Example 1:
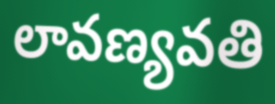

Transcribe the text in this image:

లావణ్యవతి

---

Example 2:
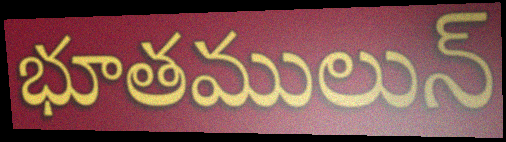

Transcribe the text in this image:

భూతములున్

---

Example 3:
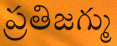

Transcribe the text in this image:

ప్రతిజగ్ము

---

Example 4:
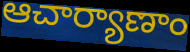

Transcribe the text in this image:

ఆచార్యాణాం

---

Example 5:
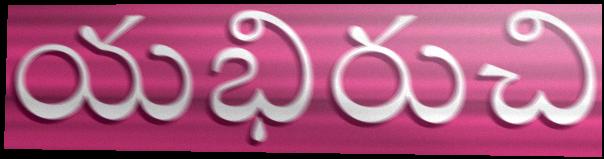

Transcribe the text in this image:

యభిరుచి